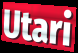
Utari